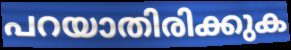
പറയാതിരിക്കുക